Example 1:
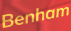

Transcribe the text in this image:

Benham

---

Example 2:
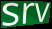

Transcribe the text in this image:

srv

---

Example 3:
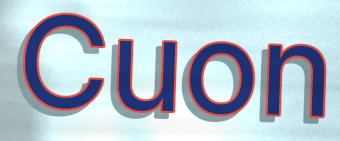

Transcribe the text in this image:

Cuon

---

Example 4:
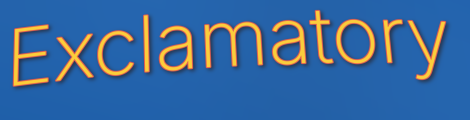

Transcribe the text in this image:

Exclamatory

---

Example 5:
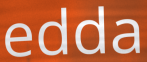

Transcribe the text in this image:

edda